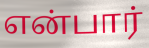
என்பார்